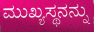
ಮುಖ್ಯಸ್ಥನನ್ನು